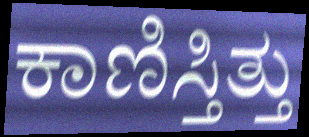
ಕಾಣಿಸ್ತಿತ್ತು